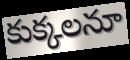
కుక్కలనూ